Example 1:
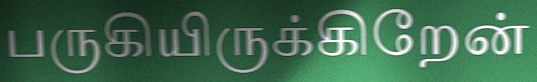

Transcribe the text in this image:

பருகியிருக்கிறேன்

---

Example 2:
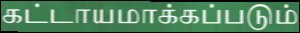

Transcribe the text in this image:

கட்டாயமாக்கப்படும்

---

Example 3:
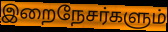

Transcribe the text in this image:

இறைநேசர்களும்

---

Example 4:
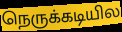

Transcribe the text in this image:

நெருக்கடியில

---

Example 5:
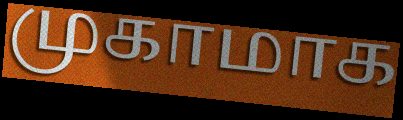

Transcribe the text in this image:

முகாமாக